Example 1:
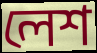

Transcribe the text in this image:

লেশ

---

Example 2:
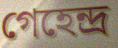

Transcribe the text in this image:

গেহেন্দ্র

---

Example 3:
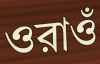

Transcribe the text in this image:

ওরাওঁ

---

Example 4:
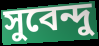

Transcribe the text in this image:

সুবেন্দু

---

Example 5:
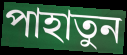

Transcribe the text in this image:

পাহাতুন